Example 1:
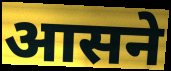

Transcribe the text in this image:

आसने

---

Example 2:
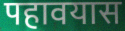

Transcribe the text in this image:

पहावयास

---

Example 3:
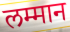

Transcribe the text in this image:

लम्मान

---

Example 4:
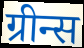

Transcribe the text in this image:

ग्रीन्स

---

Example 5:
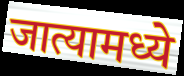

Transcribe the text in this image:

जात्यामध्ये